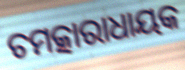
ଚମତ୍କାରାଧାୟକ